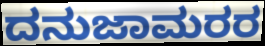
ದನುಜಾಮರರ